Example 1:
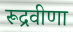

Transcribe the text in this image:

रूद्रवीणा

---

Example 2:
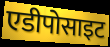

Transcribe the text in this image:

एडीपोसाइट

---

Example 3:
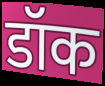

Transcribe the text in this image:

डॉक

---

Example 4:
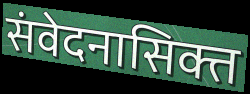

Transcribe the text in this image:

संवेदनासिक्त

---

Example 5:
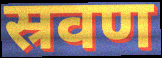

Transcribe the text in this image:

स्रवण